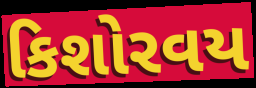
કિશોરવય